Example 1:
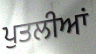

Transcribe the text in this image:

ਪੁਤਲੀਆਂ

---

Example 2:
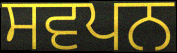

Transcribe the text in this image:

ਸਵਪਨ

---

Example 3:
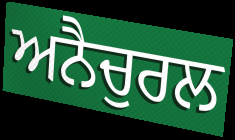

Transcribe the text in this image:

ਅਨੈਚੁਰਲ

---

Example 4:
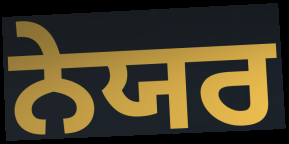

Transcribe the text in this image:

ਨੇਯਰ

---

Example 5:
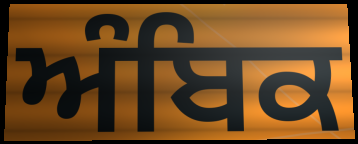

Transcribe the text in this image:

ਅੰਬਿਕ